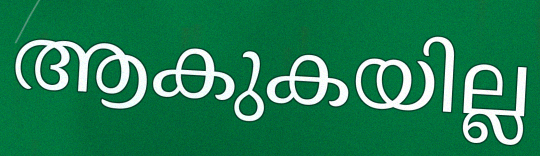
ആകുകയില്ല